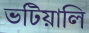
ভটিয়ালি